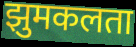
झुमकलता